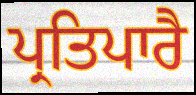
ਪ੍ਰਤਿਪਾਰੈ